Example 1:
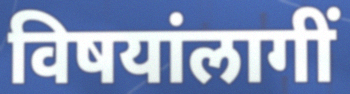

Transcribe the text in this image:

विषयांलागीं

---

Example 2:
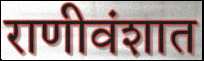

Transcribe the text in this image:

राणीवंशात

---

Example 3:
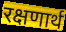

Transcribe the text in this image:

रक्षणार्थ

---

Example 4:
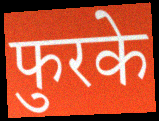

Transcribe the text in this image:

फुरके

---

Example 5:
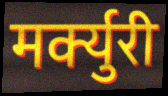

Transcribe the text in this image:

मर्क्युरी